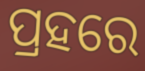
ପ୍ରହରେ